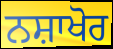
ਨਸ਼ਾਖੋਰ